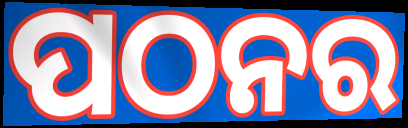
ପଠନର